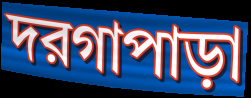
দরগাপাড়া